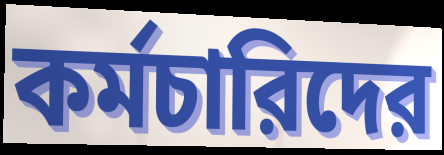
কর্মচারিদের